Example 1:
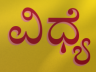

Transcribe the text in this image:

ವಿಧ್ಯೆ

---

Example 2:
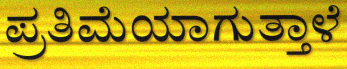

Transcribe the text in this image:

ಪ್ರತಿಮೆಯಾಗುತ್ತಾಳೆ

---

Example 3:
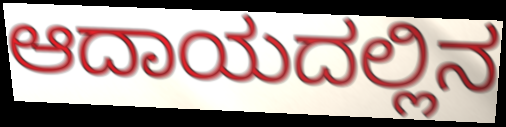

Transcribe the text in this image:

ಆದಾಯದಲ್ಲಿನ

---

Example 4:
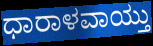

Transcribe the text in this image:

ಧಾರಾಳವಾಯ್ತು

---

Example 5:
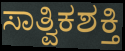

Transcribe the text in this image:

ಸಾತ್ವಿಕಶಕ್ತಿ